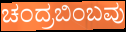
ಚಂದ್ರಬಿಂಬವು